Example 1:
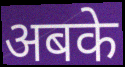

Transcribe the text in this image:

अबके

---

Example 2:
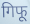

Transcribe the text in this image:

गिफू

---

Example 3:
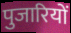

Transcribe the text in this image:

पुजारियों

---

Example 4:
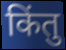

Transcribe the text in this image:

किंतु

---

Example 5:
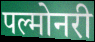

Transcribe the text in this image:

पल्मोनरी